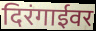
दिरंगाईवर